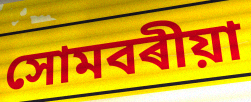
সোমবৰীয়া